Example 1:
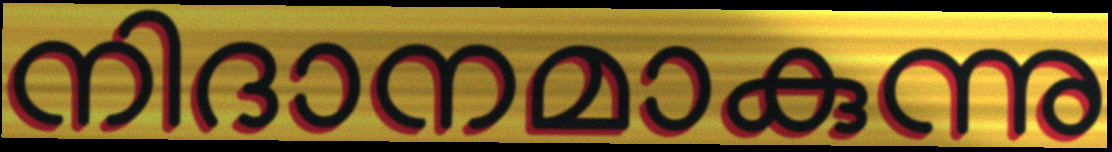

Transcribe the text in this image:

നിദാനമാകുന്നു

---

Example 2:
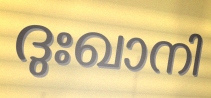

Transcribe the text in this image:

ദുഃഖാനി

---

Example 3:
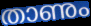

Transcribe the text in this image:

താണും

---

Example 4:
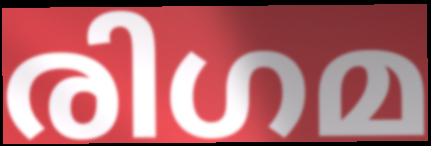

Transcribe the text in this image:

രിഗമ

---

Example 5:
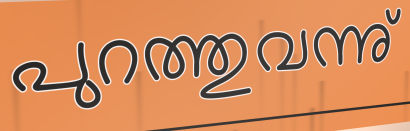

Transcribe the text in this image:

പുറത്തുവന്നു്